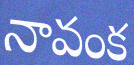
నావంక